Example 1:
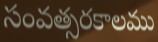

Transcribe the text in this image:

సంవత్సరకాలము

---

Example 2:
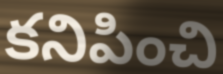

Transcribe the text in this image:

కనిపించి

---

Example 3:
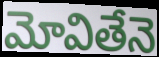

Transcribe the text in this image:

మోవితేనె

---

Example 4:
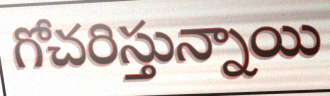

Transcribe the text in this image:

గోచరిస్తున్నాయి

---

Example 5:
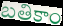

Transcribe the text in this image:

బతికాం